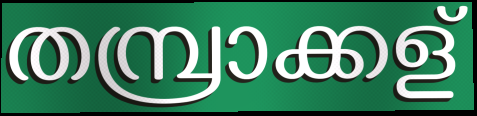
തമ്പ്രാക്കള്